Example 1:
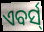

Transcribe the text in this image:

ଏବର୍ସ୍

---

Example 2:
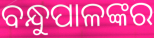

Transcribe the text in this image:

ବନ୍ଧୁପାଳଙ୍କର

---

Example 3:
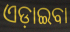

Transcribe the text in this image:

ଏଡ଼ାଇବା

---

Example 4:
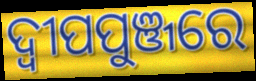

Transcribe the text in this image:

ଦ୍ବୀପପୁଞ୍ଜରେ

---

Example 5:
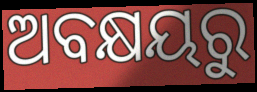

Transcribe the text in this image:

ଅବକ୍ଷୟରୁ